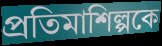
প্রতিমাশিল্পকে